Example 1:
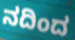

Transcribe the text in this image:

ನದಿಂದ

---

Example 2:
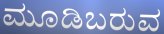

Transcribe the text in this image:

ಮೂಡಿಬರುವ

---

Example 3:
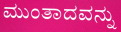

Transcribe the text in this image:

ಮುಂತಾದವನ್ನು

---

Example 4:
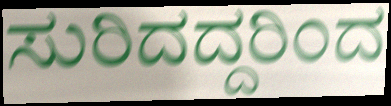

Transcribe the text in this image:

ಸುರಿದದ್ದರಿಂದ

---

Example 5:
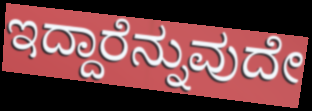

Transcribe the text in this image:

ಇದ್ದಾರೆನ್ನುವುದೇ